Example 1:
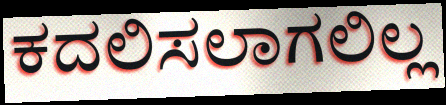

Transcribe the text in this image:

ಕದಲಿಸಲಾಗಲಿಲ್ಲ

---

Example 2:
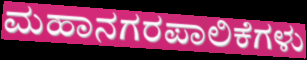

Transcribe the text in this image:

ಮಹಾನಗರಪಾಲಿಕೆಗಳು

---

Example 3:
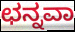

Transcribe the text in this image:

ಛನ್ನವಾ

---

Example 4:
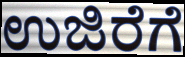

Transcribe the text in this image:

ಉಜಿರೆಗೆ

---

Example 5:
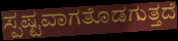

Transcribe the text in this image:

ಸ್ಪಷ್ಟವಾಗತೊಡಗುತ್ತದೆ